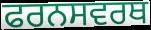
ਫਰਨਸਵਰਥ